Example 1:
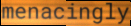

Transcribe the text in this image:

menacingly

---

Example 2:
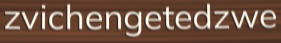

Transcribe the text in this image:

zvichengetedzwe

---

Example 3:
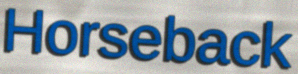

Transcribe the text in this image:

Horseback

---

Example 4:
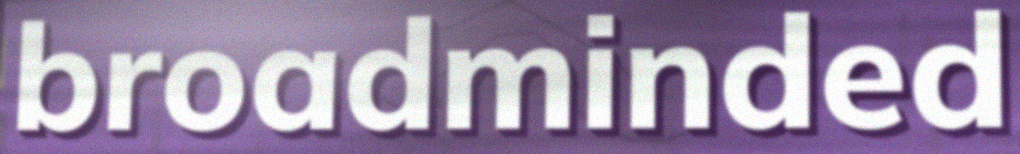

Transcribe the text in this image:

broadminded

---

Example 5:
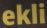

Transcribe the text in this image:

ekli